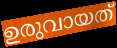
ഉരുവായത്